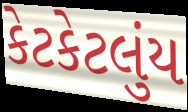
કેટકેટલુંય